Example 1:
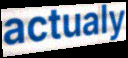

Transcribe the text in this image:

actualy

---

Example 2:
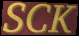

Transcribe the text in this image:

SCK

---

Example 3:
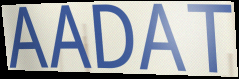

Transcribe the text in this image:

AADAT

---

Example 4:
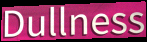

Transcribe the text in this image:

Dullness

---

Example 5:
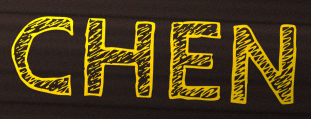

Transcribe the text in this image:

CHEN